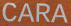
CARA